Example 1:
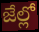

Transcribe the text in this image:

జేల్లో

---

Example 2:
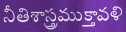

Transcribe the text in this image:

నీతిశాస్త్రముక్తావళి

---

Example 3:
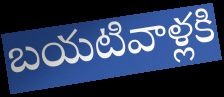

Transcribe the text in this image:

బయటివాళ్లకి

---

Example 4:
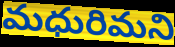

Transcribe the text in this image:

మధురిమని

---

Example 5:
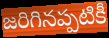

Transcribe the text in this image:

జరిగినప్పటికీ